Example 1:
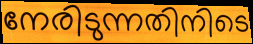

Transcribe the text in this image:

നേരിടുന്നതിനിടെ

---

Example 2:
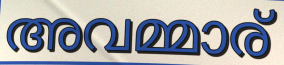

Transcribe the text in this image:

അവമ്മാര്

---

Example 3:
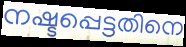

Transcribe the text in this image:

നഷ്ടപ്പെട്ടതിനെ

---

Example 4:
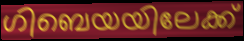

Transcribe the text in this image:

ഗിബെയയിലേക്ക്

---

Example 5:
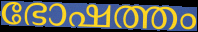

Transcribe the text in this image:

ഭോഷത്തം